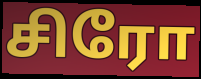
சிரோ